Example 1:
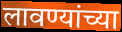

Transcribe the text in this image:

लावण्यांच्या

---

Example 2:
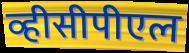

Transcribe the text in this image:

व्हीसीपीएल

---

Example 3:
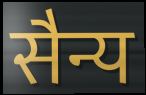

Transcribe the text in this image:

सैन्‍य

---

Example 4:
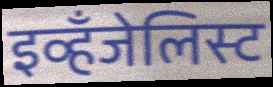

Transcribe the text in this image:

इव्हँजेलिस्ट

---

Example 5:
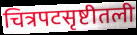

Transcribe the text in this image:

चित्रपटसृष्टीतली